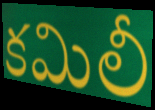
కమిలీ